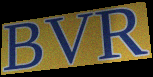
BVR